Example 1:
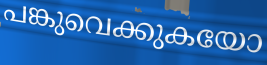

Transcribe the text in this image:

പങ്കുവെക്കുകയോ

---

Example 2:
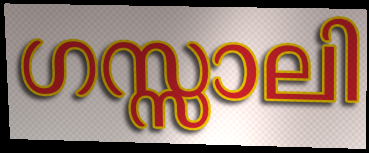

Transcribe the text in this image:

ഗസ്സാലി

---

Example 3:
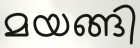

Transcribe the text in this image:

മയങ്ങി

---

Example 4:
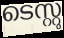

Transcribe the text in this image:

ടെസ്റ്റു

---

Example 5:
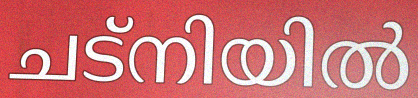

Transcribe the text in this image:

ചട്നിയിൽ